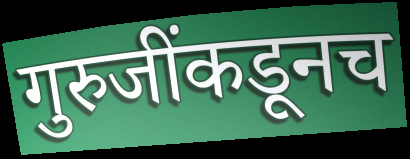
गुरुजींकडूनच